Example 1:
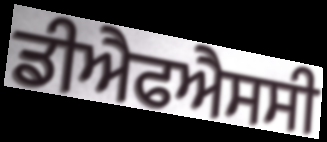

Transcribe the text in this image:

ਡੀਐਫਐਸਸੀ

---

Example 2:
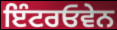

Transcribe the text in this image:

ਇੰਟਰਓਵੇਨ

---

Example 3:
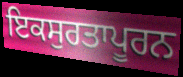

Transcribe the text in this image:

ਇਕਸੁਰਤਾਪੂਰਨ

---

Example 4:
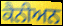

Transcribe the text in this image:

ਕੈਨੀਅਨ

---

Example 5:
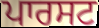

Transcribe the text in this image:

ਪਾਰਸਟ